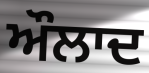
ਔਲਾਦ